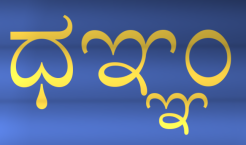
ಧಞ್ಞಂ